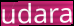
udara